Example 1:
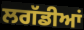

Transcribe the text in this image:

ਲਗੱਡੀਆਂ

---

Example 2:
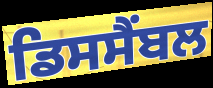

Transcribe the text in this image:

ਡਿਸਸੈਂਬਲ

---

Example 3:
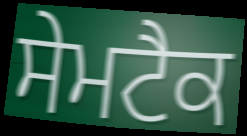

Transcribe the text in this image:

ਸੇਮਟੈਕ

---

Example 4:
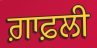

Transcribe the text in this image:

ਗ਼ਾਫ਼ਲੀ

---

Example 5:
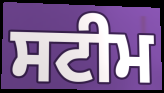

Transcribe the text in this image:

ਸਟੀਮ